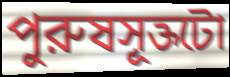
পুৰুষসূক্তটো